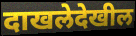
दाखलेदेखील